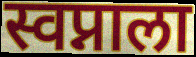
स्वप्नाला